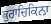
ਕੁਰਾਚਿਕਿਨਾ